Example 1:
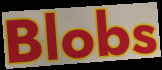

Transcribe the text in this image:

Blobs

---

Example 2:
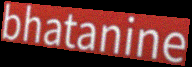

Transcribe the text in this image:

bhatanine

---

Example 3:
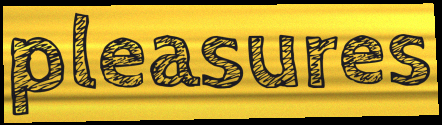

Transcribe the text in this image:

pleasures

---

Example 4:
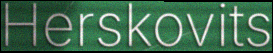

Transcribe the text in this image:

Herskovits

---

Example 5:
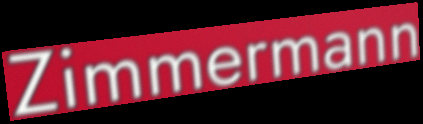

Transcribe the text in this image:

Zimmermann